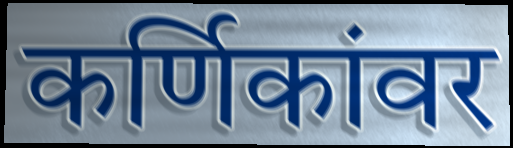
कर्णिकांवर